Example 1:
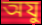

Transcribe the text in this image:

অযু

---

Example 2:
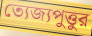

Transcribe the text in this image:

ত্যেজ্যপুত্তুর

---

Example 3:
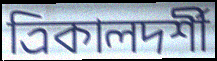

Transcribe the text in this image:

ত্রিকালদর্শী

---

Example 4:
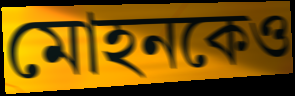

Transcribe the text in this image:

মোহনকেও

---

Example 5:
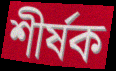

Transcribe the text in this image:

শীর্ষক